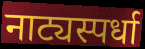
नाट्यस्पर्धा